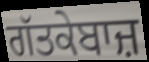
ਗੱਤਕੇਬਾਜ਼